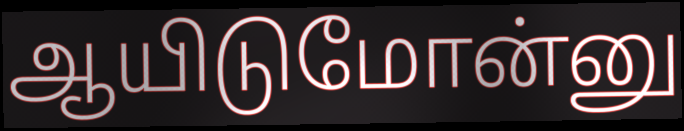
ஆயிடுமோன்னு